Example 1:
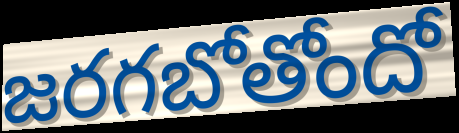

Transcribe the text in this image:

జరగబోతోందో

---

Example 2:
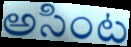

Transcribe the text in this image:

అసింట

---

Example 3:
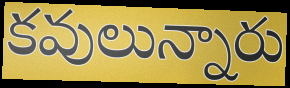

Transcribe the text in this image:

కవులున్నారు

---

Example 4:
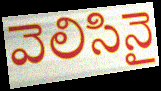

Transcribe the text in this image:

వెలిసినై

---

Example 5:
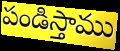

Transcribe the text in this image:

పండిస్తాము